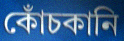
কোঁচকানি